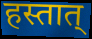
हस्तात्